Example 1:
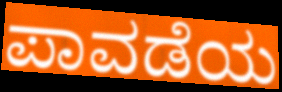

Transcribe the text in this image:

ಪಾವಡೆಯ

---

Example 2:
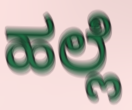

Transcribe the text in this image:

ಹಲ್ಲೆ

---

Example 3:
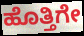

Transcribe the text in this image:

ಹೊತ್ತಿಗೇ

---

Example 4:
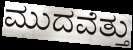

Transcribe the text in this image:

ಮುದವೆತ್ತು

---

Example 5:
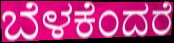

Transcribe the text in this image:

ಬೆಳಕೆಂದರೆ